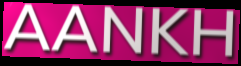
AANKH